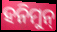
ହନିମୁନ୍